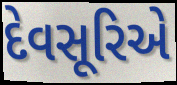
દેવસૂરિએ